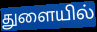
துளையில்